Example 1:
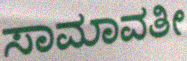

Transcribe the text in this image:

ಸಾಮಾವತೀ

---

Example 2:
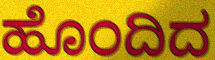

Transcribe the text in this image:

ಹೊಂದಿದ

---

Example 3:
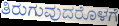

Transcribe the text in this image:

ತಿರುಗುವುದರೊಳಗೆ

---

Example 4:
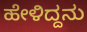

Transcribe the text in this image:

ಹೇಳಿದ್ದನು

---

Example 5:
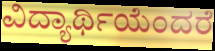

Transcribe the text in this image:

ವಿದ್ಯಾರ್ಥಿಯೆಂದರೆ